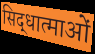
सिद्धात्माओं